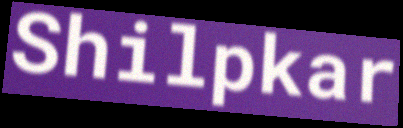
Shilpkar